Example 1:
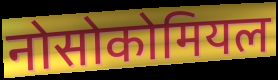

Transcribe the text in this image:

नोसोकोमियल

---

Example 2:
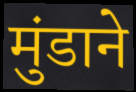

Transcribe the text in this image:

मुंडाने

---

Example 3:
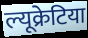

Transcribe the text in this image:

ल्यूक्रेटिया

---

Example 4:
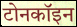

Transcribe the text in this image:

टोनकॉइन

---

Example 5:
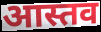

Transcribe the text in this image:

आस्तव